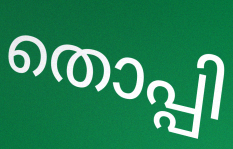
തൊപ്പി